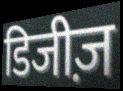
डिजीज़